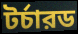
টর্চারড